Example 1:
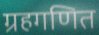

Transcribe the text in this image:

ग्रहगणित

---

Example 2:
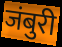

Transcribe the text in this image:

जंबुरी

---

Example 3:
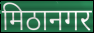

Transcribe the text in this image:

मिठानगर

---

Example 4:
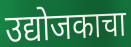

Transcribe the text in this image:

उद्योजकाचा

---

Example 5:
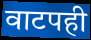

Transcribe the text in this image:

वाटपही